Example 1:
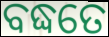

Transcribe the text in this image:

ବଦ୍ଧତେ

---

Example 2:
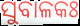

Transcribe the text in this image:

ସୁବାଳକଃ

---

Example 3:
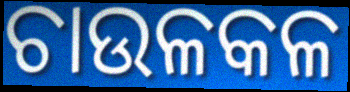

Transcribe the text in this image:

ଚାଉଳକଳ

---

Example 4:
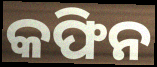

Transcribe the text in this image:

କଫିନ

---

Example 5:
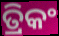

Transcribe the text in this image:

ତ୍ରିକଂ